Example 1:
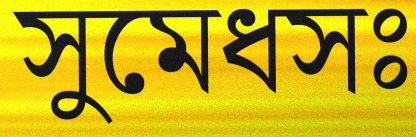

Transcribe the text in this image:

সুমেধসঃ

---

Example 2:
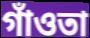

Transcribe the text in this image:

গাঁওতা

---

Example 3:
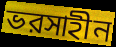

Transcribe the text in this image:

ভরসাহীন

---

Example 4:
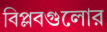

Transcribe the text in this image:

বিপ্লবগুলোর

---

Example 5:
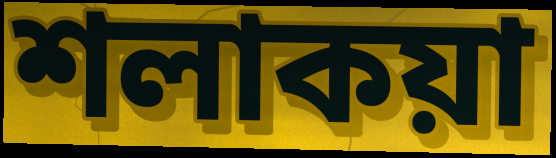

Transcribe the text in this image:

শলাকয়া